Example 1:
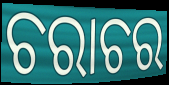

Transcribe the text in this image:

ଚରାଚର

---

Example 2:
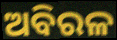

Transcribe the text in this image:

ଅବିରଳ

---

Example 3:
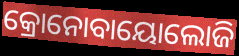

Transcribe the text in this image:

କ୍ରୋନୋବାୟୋଲୋଜି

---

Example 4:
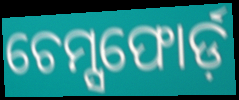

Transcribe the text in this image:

ଚେମ୍ସଫୋର୍ଡ଼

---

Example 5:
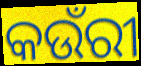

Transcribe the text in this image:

କଉଁରୀ